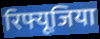
रिफ्यूजिया